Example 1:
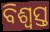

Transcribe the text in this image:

ବିଶ୍ବସ୍ତ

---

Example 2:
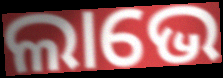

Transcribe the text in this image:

ଲାଭେ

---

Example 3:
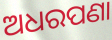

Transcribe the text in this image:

ଅଧରପଣା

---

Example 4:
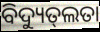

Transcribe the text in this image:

ବିଦ୍ୟୁତ୍‌ଲତା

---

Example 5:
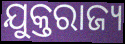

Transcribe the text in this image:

ଯୁକ୍ତରାଜ୍ୟ